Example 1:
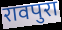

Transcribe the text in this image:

रावपुरा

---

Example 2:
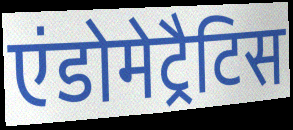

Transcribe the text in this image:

एंडोमेट्रैटिस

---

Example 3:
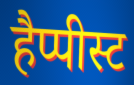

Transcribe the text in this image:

हैप्पीस्ट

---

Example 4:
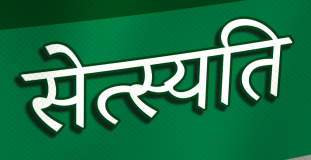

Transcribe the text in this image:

सेत्स्यति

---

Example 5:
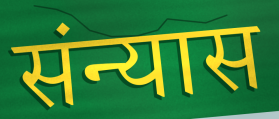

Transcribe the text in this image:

संन्यास